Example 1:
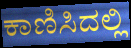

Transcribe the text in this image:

ಕಾಣಿಸಿದಲ್ಲಿ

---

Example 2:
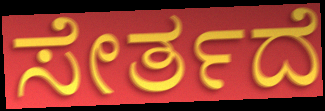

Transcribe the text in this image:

ಸೇರ್ತದೆ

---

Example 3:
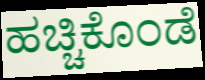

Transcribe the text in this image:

ಹಚ್ಚಿಕೊಂಡೆ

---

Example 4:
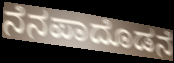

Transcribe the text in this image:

ನೆನಪಾದೊಡನೆ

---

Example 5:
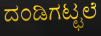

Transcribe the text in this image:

ದಂಡಿಗಟ್ಟಲೆ